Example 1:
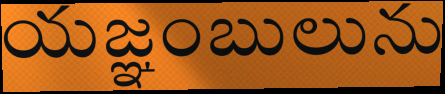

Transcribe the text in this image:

యజ్ఞంబులును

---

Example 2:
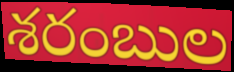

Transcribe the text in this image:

శరంబుల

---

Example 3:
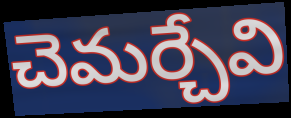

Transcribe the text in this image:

చెమర్చేవి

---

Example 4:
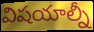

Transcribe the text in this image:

విషయాల్నీ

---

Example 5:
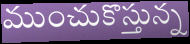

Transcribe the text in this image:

ముంచుకొస్తున్న